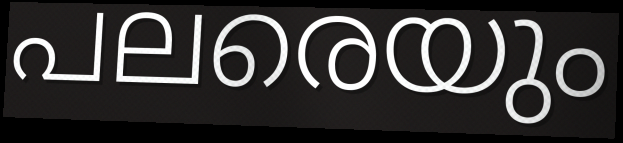
പലരെയും